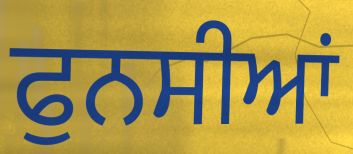
ਫੁਨਸੀਆਂ